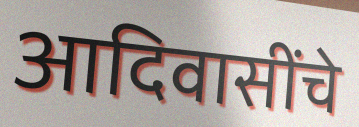
आदिवासींचे